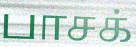
பாசக்